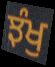
ਝੰਖੁ